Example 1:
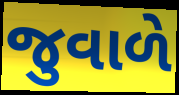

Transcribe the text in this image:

જુવાળે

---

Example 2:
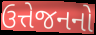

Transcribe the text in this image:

ઉત્તેજનનો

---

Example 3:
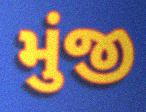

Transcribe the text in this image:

મુંજી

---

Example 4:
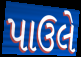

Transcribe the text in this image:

પાઉલે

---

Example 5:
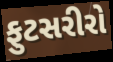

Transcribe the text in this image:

ફુટસરીરો